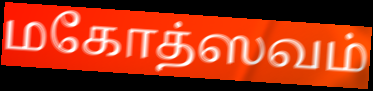
மகோத்ஸவம்